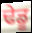
ਢੇਡੂ